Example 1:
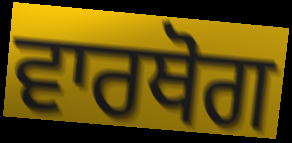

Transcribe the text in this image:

ਵਾਰਥੋਗ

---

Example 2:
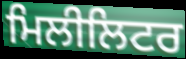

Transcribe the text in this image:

ਮਿਲੀਲਿਟਰ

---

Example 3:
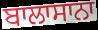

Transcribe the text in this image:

ਬਾਲਾਸਾਨਾ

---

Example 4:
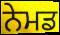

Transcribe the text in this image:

ਨੇਮਡ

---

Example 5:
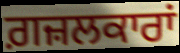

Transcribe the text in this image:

ਗ਼ਜ਼ਲਕਾਰਾਂ